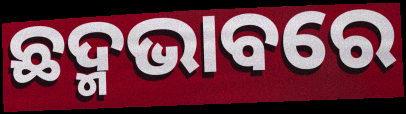
ଛଦ୍ମଭାବରେ